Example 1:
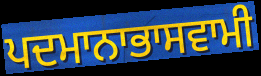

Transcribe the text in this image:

ਪਦਮਾਨਾਭਾਸਵਾਮੀ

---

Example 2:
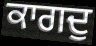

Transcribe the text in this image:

ਕਾਗਦੁ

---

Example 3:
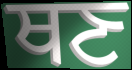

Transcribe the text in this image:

ਥਣ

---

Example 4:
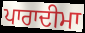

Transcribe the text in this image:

ਪਾਰਾਦੀਮਾ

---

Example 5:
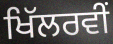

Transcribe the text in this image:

ਖਿੱਲਰਵੀਂ